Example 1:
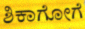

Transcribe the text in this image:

ಶಿಕಾಗೋಗೆ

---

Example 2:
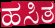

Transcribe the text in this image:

ಹಸಿತ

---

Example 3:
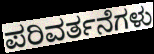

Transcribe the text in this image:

ಪರಿವರ್ತನೆಗಳು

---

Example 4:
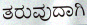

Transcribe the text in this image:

ತರುವುದಾಗಿ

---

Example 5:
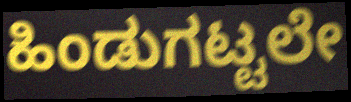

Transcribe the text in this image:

ಹಿಂಡುಗಟ್ಟಲೇ